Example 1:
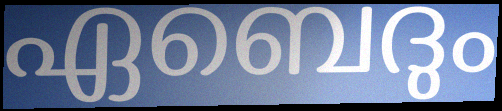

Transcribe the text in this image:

ഏബെദും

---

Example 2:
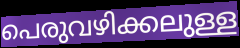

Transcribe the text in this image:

പെരുവഴിക്കലുള്ള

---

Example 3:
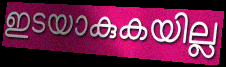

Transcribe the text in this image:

ഇടയാകുകയില്ല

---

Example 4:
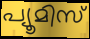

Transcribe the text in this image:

പ്യൂമിസ്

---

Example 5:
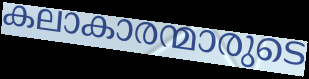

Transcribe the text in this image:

കലാകാരന്മാരുടെ